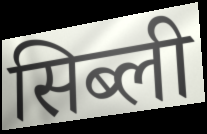
सिब्ली